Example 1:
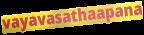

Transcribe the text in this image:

vayavasathaapana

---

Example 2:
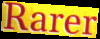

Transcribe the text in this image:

Rarer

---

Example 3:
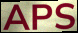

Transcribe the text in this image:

APS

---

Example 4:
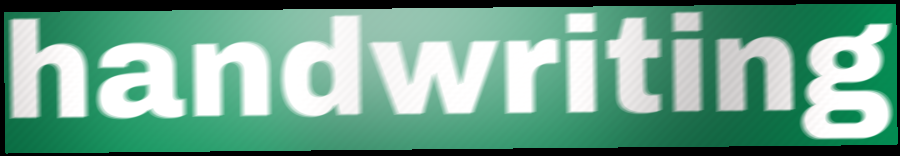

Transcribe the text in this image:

handwriting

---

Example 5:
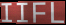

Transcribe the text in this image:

IIFL